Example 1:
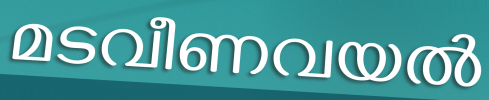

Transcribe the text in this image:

മടവീണവയൽ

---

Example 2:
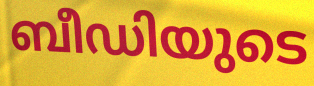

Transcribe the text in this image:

ബീഡിയുടെ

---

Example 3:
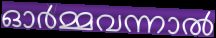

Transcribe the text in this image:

ഓർമ്മവന്നാൽ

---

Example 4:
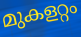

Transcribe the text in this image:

മുകളറ്റം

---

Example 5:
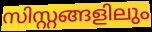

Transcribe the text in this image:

സിസ്റ്റങ്ങളിലും